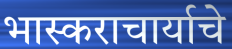
भास्कराचार्याचे